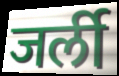
जर्ली